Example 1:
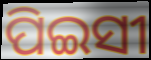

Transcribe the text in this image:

ପିଇସୀ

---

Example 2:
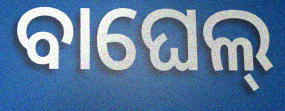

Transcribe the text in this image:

ବାଘେଲ୍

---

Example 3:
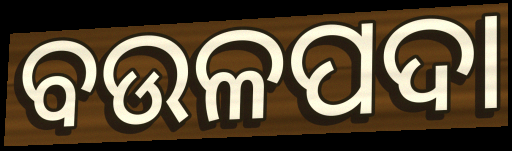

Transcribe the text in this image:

ବଉଳପଦା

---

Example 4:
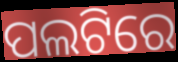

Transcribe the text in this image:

ପଲଟିରେ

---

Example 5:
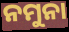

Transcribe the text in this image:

ନମୁନା